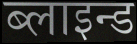
ब्लाइन्ड